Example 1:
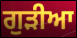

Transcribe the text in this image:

ਗੁੜੀਆ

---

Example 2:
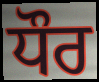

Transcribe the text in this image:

ਧੌਰ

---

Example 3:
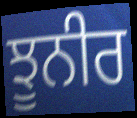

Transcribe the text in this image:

ਝੂਨੀਰ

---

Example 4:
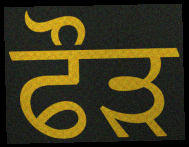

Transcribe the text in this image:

ਫੌਡ਼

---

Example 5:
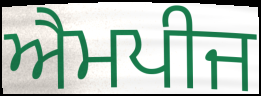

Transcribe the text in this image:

ਐਮਪੀਜ